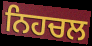
ਨਿਹਚਲ